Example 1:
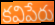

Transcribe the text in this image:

కవిపేరు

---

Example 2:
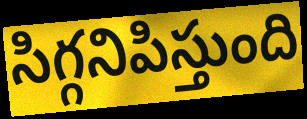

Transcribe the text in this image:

సిగ్గనిపిస్తుంది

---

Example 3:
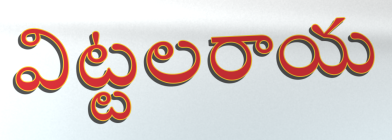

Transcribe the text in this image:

విట్టలరాయ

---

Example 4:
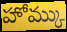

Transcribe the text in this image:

హోమ్కు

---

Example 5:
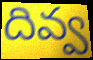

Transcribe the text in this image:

దివ్వ